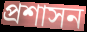
প্ৰশাসন